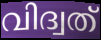
വിദ്വത്